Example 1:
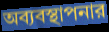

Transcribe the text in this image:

অব্যবস্থাপনার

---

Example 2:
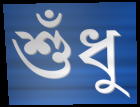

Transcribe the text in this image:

শুঁধু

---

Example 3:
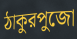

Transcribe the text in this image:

ঠাকুরপুজো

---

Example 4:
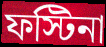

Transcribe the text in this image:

ফস্টিনা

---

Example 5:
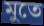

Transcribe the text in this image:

মুতে